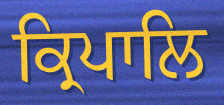
ਕ੍ਰਿਪਾਲਿ